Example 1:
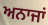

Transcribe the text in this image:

ਅਨਾਜਾਂ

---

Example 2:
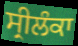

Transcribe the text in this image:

ਸ੍ਰੀਲੰਕਾ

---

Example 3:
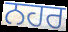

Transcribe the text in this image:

ਨਹਰ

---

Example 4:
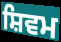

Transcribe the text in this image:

ਸ਼ਿਵਮ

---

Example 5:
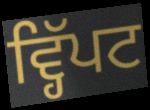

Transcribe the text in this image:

ਵ੍ਹਿੱਪਟ